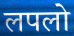
लपलो